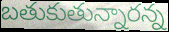
బతుకుతున్నారన్న